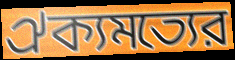
ঐক্যমত্যের